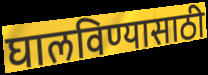
घालविण्यासाठी